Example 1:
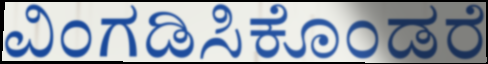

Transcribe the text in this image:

ವಿಂಗಡಿಸಿಕೊಂಡರೆ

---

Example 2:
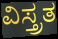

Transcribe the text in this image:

ವಿಸ್ತ್ರತ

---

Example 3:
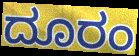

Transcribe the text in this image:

ದೂರಂ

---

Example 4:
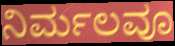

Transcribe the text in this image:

ನಿರ್ಮಲವೂ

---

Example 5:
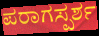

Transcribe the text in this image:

ಪರಾಗಸ್ಪರ್ಶ